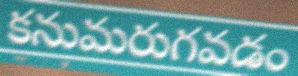
కనుమరుగవడం